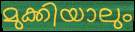
മുക്കിയാലും